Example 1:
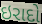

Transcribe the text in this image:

ઇરાદો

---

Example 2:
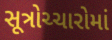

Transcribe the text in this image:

સૂત્રોચ્ચારોમાં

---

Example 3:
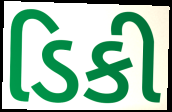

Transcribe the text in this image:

ડિકી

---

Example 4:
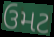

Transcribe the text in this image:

ઉમટ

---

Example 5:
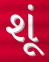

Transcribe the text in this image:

શૂં